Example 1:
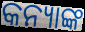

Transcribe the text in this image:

କନ୍ୟାଙ୍କ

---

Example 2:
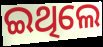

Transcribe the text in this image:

ଇଥିଲେ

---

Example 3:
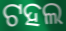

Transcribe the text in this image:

ଟହଲ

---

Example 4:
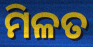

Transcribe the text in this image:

ମିଳତ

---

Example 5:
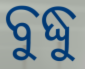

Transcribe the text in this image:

ବୁଦ୍ଧୁ